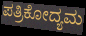
ಪತ್ರಿಕೋದ್ಯಮ